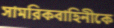
সামরিকবাহিনীকে